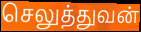
செலுத்துவன்